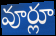
వూర్లూ